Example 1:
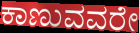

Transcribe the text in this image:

ಕಾಣುವವರೇ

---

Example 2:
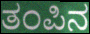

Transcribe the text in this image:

ತಂಪಿನ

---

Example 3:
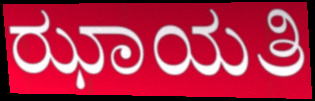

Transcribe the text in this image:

ಝಾಯತಿ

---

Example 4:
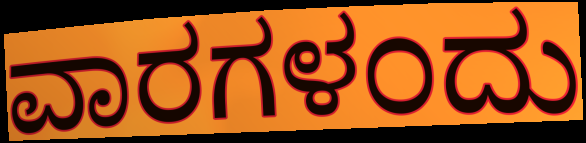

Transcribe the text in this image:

ವಾರಗಳಂದು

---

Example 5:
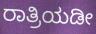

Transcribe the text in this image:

ರಾತ್ರಿಯಡೀ